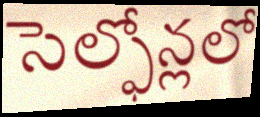
సెల్ఫోన్లలో